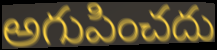
అగుపించదు